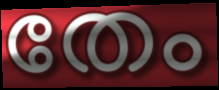
തേം